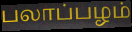
பலாப்பழம்